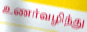
உணர்வழிந்து